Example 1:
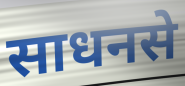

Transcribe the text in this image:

साधनसे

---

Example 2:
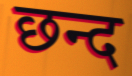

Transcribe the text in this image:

छन्द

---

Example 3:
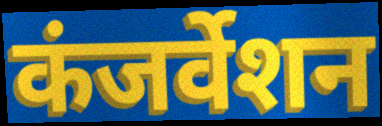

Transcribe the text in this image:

कंजर्वेशन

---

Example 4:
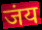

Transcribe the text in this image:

जंय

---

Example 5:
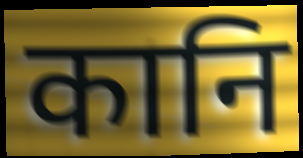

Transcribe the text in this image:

कानि